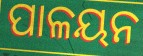
ପାଳୟନ